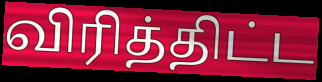
விரித்திட்ட